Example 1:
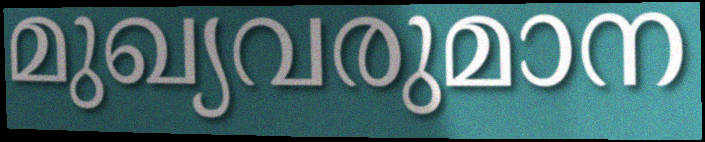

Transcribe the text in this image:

മുഖ്യവരുമാന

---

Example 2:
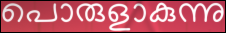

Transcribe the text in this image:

പൊരുളാകുന്നു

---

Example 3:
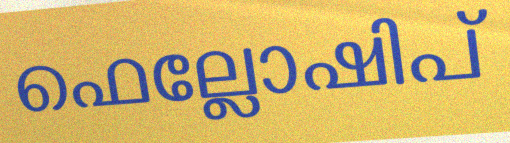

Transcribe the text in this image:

ഫെല്ലോഷിപ്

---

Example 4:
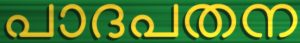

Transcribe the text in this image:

പാദപതന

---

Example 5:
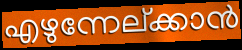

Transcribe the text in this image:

എഴുന്നേല്ക്കാൻ